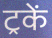
ट्रकें